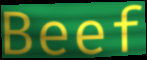
Beef